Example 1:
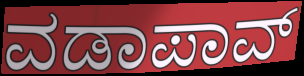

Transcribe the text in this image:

ವಡಾಪಾವ್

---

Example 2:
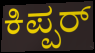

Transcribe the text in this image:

ಕಿಪ್ಪರ್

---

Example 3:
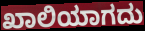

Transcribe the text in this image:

ಖಾಲಿಯಾಗದು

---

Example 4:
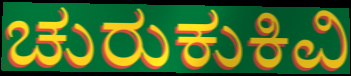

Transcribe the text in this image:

ಚುರುಕುಕಿವಿ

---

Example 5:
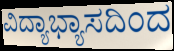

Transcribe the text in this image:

ವಿದ್ಯಾಭ್ಯಾಸದಿಂದ